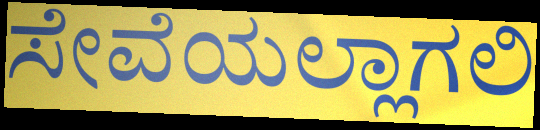
ಸೇವೆಯಲ್ಲಾಗಲಿ